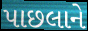
પાછલાને